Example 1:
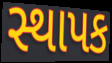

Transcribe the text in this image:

સ્થાપક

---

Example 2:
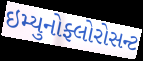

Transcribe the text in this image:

ઇમ્યુનોફ્લોરોસન્ટ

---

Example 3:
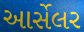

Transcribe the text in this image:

આર્સેલર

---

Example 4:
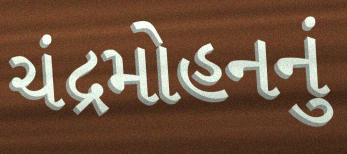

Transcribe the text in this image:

ચંદ્રમોહનનું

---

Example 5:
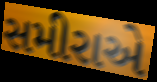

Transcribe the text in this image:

સમીરાએ